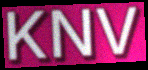
KNV